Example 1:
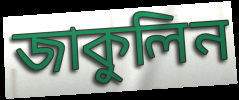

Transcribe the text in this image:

জাকুলিন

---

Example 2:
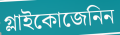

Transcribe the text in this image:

গ্লাইকোজেনিন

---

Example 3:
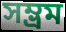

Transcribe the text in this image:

সম্ভ্রম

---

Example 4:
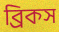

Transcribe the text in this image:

ব্রিকস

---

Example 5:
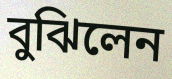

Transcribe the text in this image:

বুঝিলেন